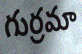
గుర్రమా